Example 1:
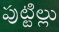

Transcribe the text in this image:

పుట్టిల్లు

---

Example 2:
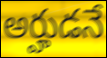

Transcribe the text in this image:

అర్హుడనే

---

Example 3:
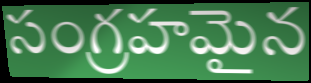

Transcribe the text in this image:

సంగ్రహమైన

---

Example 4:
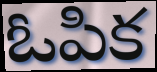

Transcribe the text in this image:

ఓపిక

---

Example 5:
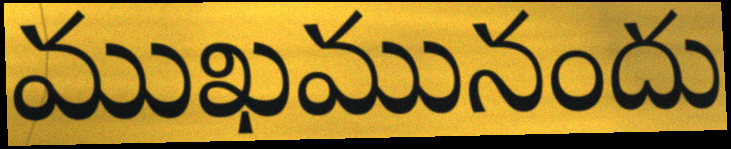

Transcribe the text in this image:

ముఖమునందు